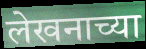
लेखनाच्या